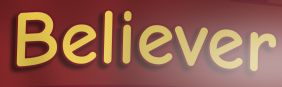
Believer